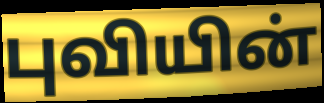
புவியின்